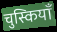
चुस्कियाँ